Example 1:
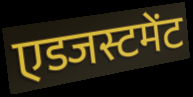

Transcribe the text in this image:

एडजस्टमेंट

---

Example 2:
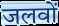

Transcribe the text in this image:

जलवों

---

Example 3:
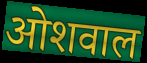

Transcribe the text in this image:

ओशवाल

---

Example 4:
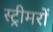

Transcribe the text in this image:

स्ट्रीमरों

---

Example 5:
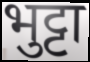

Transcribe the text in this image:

भुट्टा